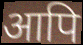
आपि